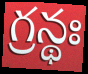
గ్రన్థః